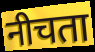
नीचता